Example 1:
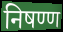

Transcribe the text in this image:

निषण्ण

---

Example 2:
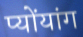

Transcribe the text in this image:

प्योंयांग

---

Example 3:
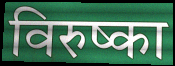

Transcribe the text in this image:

विरुष्का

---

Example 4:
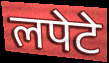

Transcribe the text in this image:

लपेटे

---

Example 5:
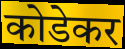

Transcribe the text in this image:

कोडेकर